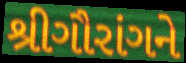
શ્રીગૌરાંગને